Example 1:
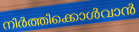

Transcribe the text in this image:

നിർത്തിക്കൊൾവാൻ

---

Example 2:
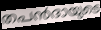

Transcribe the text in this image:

തപൻദായുടെ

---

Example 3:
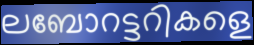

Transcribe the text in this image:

ലബോറട്ടറികളെ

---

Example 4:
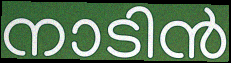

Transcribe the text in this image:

നാടിൻ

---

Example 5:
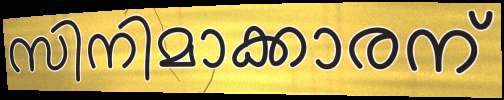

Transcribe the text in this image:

സിനിമാക്കാരന്